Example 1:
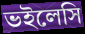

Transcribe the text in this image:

ভইলেসি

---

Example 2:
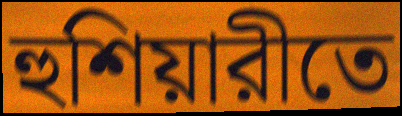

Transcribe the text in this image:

হুশিয়ারীতে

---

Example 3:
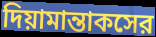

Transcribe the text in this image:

দিয়ামান্তাকসের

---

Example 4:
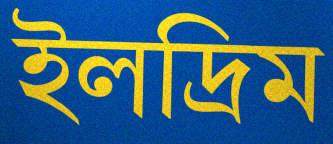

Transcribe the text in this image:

ইলদ্রিম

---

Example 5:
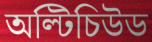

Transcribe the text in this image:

অল্টিচিউড